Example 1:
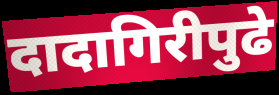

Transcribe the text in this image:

दादागिरीपुढे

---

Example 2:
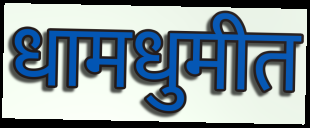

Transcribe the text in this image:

धामधुमीत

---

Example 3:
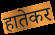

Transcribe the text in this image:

हातेकर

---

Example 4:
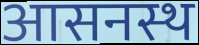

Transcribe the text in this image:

आसनस्थ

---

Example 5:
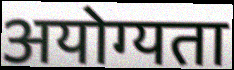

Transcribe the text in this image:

अयोग्यता